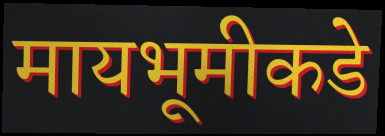
मायभूमीकडे